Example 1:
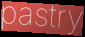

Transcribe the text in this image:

pastry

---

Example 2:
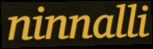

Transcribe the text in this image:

ninnalli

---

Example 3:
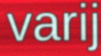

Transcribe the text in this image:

varij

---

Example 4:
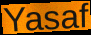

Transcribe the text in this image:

Yasaf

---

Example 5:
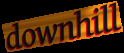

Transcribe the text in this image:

downhill